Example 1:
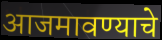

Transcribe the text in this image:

आजमावण्याचे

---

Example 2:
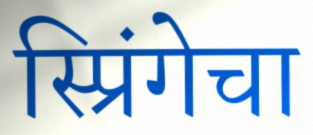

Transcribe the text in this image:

स्प्रिंगेचा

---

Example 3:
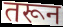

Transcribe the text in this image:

तरून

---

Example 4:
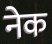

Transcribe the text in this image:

नेक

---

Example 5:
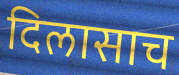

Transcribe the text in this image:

दिलासाच